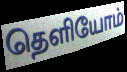
தெளியோம்